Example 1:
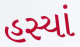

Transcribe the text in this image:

હસ્યાં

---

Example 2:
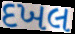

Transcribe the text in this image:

દખલ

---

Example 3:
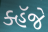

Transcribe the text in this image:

ક્હૅજે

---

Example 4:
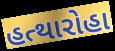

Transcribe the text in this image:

હત્થારોહા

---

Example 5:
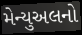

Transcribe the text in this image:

મેન્યુઅલનો